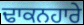
ਢਾਕਨਹਾਰੇ